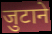
जुटाने